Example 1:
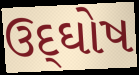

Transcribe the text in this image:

ઉદ્‌ઘોષ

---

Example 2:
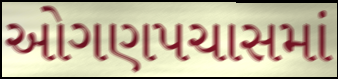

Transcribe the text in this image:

ઓગણપચાસમાં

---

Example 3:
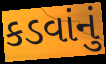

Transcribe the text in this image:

કડવાંનું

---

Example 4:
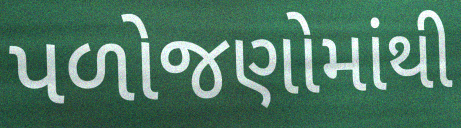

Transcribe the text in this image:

પળોજણોમાંથી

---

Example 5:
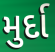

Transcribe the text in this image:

મુર્દા